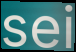
sei